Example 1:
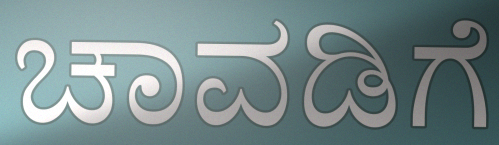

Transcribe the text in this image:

ಚಾವಡಿಗೆ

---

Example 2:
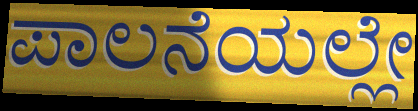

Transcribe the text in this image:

ಪಾಲನೆಯಲ್ಲೇ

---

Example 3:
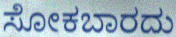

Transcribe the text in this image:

ಸೋಕಬಾರದು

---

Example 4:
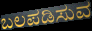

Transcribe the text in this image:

ಬಲಪಡಿಸುವ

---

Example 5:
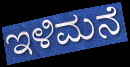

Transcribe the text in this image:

ಇಳಿಮನೆ